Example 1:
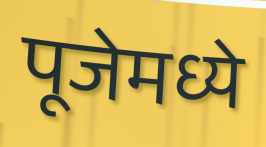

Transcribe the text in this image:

पूजेमध्ये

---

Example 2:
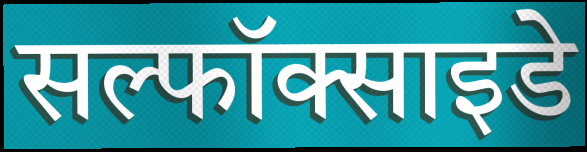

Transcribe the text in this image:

सल्फॉक्साइडे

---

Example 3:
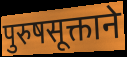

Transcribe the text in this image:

पुरुषसूक्ताने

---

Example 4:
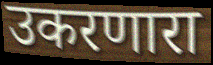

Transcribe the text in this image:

उकरणारा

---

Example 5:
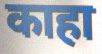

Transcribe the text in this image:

काहा